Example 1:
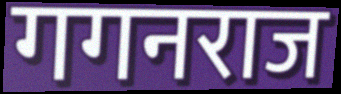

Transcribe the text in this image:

गगनराज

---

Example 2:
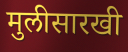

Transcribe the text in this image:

मुलीसारखी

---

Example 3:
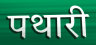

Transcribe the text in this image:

पथारी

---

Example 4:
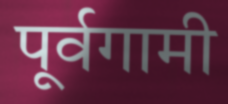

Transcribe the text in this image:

पूर्वगामी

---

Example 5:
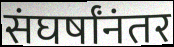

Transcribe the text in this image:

संघर्षांनंतर